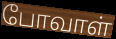
போவாள்